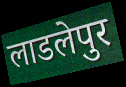
लाडलेपुर